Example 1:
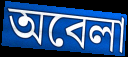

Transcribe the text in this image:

অবেলা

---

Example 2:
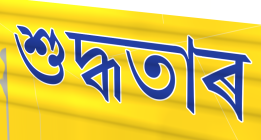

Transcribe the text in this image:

শুদ্ধতাৰ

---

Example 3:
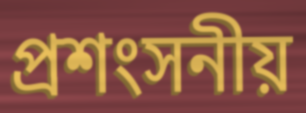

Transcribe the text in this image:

প্ৰশংসনীয়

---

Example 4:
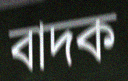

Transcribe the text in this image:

বাদক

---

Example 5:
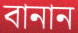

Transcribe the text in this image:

বানান